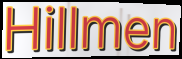
Hillmen